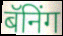
बॅनिंग